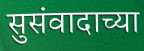
सुसंवादाच्या